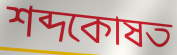
শব্দকোষত